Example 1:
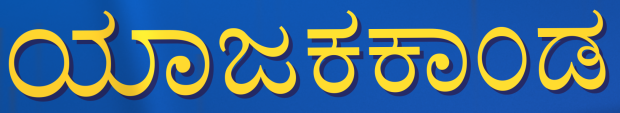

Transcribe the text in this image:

ಯಾಜಕಕಾಂಡ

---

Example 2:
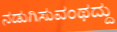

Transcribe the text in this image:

ನಡುಗಿಸುವಂಥದ್ದು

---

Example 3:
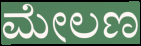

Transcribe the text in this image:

ಮೇಲಣ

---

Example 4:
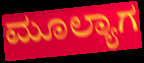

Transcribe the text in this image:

ಮೂಲ್ಯಾಗ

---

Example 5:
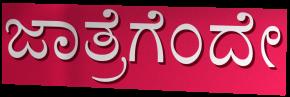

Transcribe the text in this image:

ಜಾತ್ರೆಗೆಂದೇ